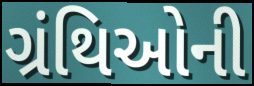
ગ્રંથિઓની